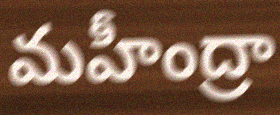
మహీంద్రా